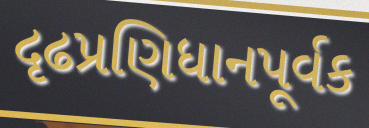
દૃઢપ્રણિધાનપૂર્વક